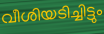
വീശിയടിച്ചിട്ടും